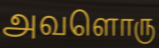
அவளொரு